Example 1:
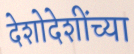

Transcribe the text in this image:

देशोदेशींच्या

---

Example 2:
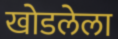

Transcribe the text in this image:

खोडलेला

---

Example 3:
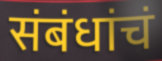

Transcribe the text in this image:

संबंधांचं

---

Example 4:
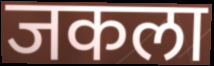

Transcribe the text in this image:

जकला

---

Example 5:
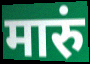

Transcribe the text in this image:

मारुं